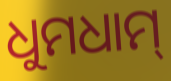
ଧୁମଧାମ୍